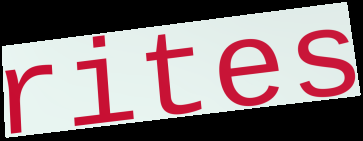
rites